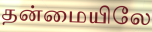
தன்மையிலே